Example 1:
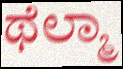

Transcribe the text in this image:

ಥೆಲ್ಮಾ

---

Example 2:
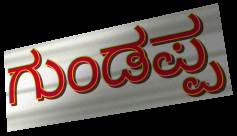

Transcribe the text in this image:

ಗುಂಡಪ್ಪ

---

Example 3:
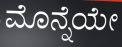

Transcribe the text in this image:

ಮೊನ್ನೆಯೇ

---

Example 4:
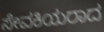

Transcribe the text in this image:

ಸೇವಕಿಯರಾದ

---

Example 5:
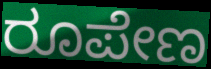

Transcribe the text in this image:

ರೂಪೇಣ